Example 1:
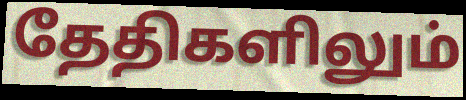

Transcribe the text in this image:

தேதிகளிலும்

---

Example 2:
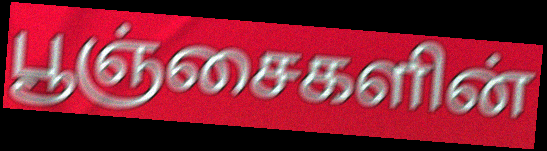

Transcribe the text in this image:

பூஞ்சைகளின்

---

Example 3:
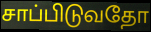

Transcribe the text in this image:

சாப்பிடுவதோ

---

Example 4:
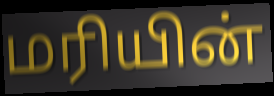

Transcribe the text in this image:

மரியின்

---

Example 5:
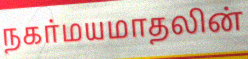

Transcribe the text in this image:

நகர்மயமாதலின்